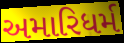
અમારિધર્મ